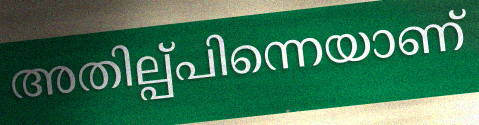
അതില്പ്പിന്നെയാണ്